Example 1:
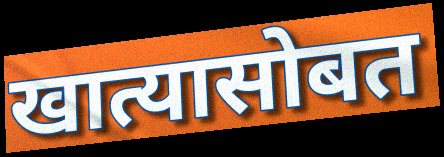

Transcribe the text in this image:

खात्यासोबत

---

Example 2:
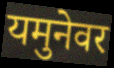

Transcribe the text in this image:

यमुनेवर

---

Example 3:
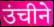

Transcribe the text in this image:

उंचीने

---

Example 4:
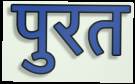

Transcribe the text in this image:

पुरत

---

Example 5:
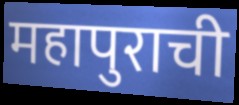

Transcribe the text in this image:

महापुराची